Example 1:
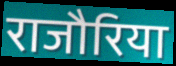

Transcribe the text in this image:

राजौरिया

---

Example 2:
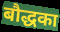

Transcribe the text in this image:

बौद्धका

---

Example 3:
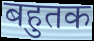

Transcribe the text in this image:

बहुतक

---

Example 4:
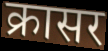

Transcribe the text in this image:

क्रासर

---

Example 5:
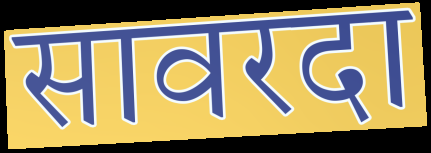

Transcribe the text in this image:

सावरदा